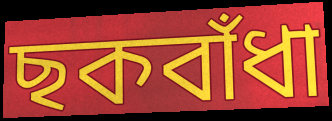
ছকবাঁধা